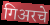
गिअरचे